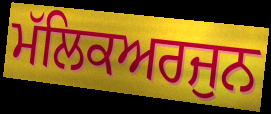
ਮੱਲਿਕਅਰਜੁਨ